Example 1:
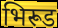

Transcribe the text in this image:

भिरूड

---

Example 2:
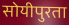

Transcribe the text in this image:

सोयीपुरता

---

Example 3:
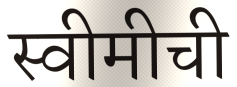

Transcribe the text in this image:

स्वीमीची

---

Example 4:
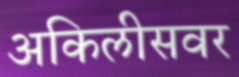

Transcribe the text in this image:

अकिलीसवर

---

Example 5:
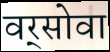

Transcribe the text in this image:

वर्सोवा